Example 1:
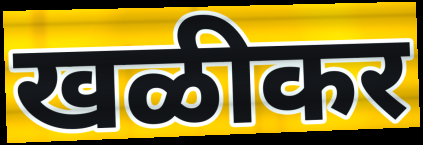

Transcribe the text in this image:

खळीकर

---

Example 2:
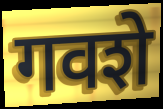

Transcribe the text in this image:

गवशे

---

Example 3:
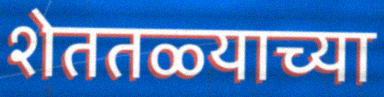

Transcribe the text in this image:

शेततळ्याच्या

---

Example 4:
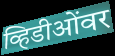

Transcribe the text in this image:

व्हिडीओंवर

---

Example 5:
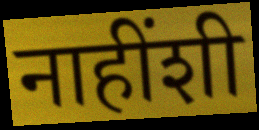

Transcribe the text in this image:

नाहींशी